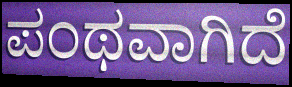
ಪಂಥವಾಗಿದೆ